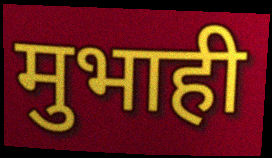
मुभाही